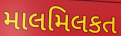
માલમિલકત